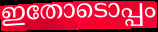
ഇതോടൊപ്പം